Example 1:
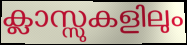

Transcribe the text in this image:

ക്ലാസ്സുകളിലും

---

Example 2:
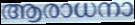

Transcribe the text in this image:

ആരാധനാ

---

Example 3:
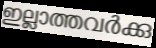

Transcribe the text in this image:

ഇല്ലാത്തവർക്കു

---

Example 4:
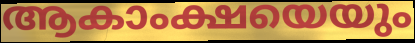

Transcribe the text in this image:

ആകാംക്ഷയെയും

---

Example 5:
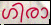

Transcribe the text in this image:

ഗിരാ